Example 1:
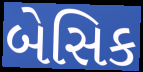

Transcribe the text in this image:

બેસિક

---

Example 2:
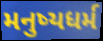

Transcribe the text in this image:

મનુષ્યધર્મ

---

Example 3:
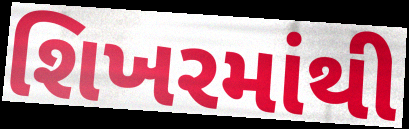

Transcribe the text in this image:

શિખરમાંથી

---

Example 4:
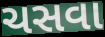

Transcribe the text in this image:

ચસવા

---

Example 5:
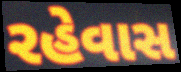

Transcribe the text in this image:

રહેવાસ